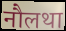
नौलथा